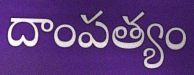
దాంపత్యం